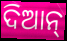
ଦିଆନ୍